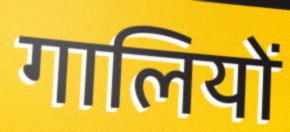
गालियों